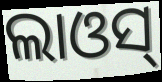
ଲାଓସ୍